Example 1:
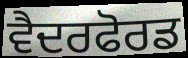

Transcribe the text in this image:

ਵੈਦਰਫੋਰਡ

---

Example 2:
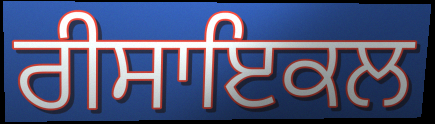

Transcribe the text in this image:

ਰੀਸਾਇਕਲ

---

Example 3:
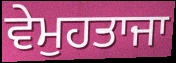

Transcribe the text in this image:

ਵੇਮੁਹਤਾਜਾ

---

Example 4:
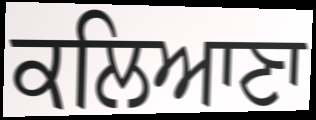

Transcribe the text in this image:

ਕਲਿਆਣਾ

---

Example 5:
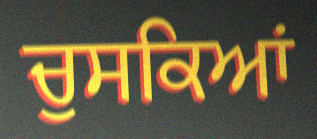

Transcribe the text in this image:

ਚੁਸਕਿਆਂ